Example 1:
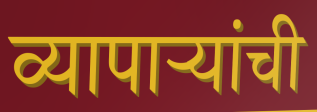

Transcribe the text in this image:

व्यापाऱ्यांची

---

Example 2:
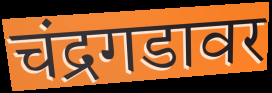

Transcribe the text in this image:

चंद्रगडावर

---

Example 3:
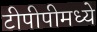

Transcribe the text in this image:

टीपीपीमध्ये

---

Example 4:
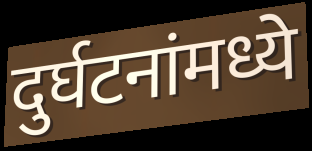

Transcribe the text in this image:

दुर्घटनांमध्ये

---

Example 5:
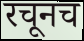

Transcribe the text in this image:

रचूनच